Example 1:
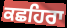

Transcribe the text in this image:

ਕਛਹਿਰਾ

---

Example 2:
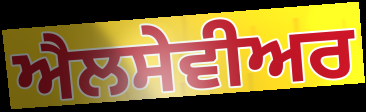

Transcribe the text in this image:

ਐਲਸੇਵੀਅਰ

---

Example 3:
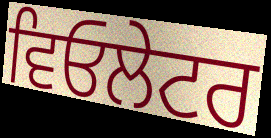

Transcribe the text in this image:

ਵਿਓਲੇਟਰ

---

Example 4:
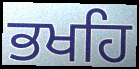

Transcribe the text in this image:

ਭਖਹਿ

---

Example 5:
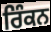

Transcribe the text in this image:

ਰਿੰਕਨ